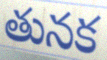
తునక